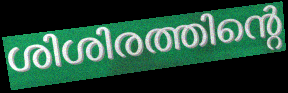
ശിശിരത്തിന്റെ